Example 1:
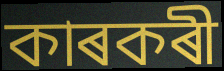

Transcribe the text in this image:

কাৰকৰী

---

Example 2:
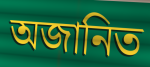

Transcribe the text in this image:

অজানিত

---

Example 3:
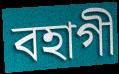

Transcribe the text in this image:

বহাগী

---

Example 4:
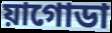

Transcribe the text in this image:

য়াগোডা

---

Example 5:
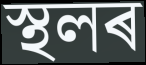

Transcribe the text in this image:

স্থলৰ